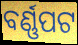
ବର୍ଣ୍ଣପଟ